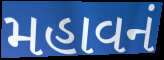
મહાવનં